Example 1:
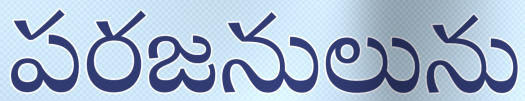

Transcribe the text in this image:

పరజనులును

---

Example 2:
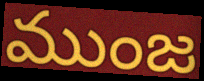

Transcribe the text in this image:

ముంజ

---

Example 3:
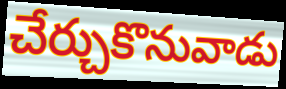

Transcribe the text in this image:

చేర్చుకొనువాడు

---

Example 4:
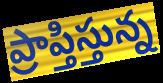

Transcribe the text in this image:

ప్రాప్తిస్తున్న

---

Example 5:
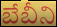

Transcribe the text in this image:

బేబీని